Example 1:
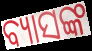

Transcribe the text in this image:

ବ୍ୟାସଙ୍କ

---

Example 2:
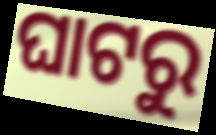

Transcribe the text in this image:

ଘାଟରୁ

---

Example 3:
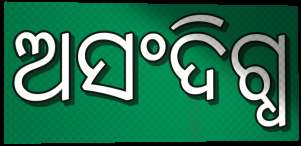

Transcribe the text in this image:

ଅସଂଦିଗ୍ଧ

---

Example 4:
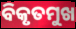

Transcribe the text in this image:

ବିକୃତମୁଖ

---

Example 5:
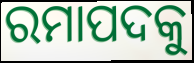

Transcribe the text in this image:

ରମାପଦକୁ